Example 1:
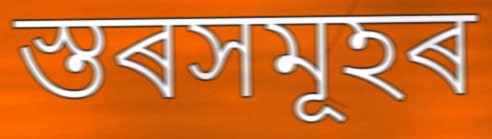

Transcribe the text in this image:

স্তৰসমূহৰ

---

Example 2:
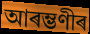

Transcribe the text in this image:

আৰম্ভণীৰ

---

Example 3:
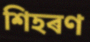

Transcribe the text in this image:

শিহৰণ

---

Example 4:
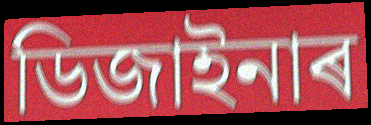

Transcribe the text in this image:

ডিজাইনাৰ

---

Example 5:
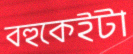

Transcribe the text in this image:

বহুকেইটা